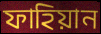
ফাহিয়ান